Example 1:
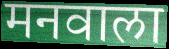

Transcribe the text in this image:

मनवाला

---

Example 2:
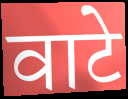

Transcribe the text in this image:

वाटे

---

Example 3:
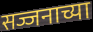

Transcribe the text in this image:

सज्जनाच्या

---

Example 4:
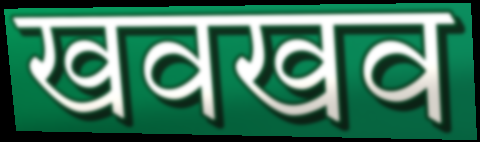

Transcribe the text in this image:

खवखव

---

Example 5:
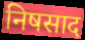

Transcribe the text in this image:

निषसाद